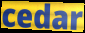
cedar